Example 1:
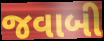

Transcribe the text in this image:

જવાબી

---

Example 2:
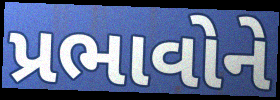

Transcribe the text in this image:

પ્રભાવોને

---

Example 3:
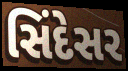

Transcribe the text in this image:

સિંદેસર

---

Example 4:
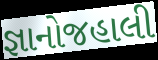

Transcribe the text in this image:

જ્ઞાનોજહાલી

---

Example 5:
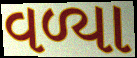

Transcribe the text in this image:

વળ્યા